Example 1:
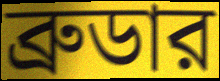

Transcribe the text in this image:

ব্রুডার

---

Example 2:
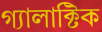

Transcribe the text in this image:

গ্যালাক্টিক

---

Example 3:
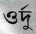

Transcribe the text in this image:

ওর্দু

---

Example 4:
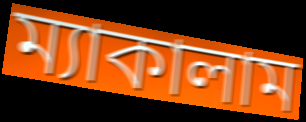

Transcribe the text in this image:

ম্যাকালাম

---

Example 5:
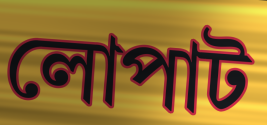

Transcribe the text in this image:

লোপাট